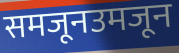
समजूनउमजून